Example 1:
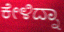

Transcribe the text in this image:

ಕೇಳಿದ್ನಾ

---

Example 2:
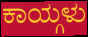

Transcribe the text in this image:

ಕಾಯ್ಗಳು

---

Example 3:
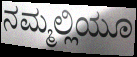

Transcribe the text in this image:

ನಮ್ಮಲ್ಲಿಯೂ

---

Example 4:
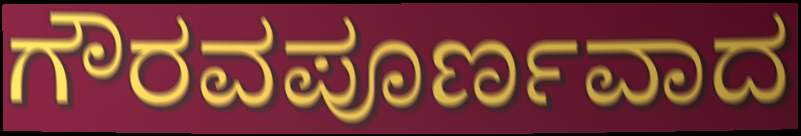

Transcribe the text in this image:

ಗೌರವಪೂರ್ಣವಾದ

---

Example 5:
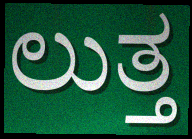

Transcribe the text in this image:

ಲುತ್ತ